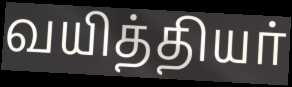
வயித்தியர்